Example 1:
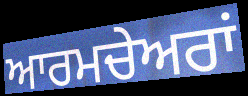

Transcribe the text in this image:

ਆਰਮਚੇਅਰਾਂ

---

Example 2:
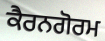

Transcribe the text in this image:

ਕੈਰਨਗੋਰਮ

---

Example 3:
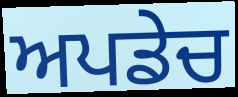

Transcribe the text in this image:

ਅਪਡੇਚ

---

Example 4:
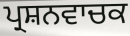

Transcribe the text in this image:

ਪ੍ਰਸ਼ਨਵਾਚਕ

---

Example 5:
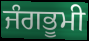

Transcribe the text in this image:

ਜੰਗਭੂਮੀ